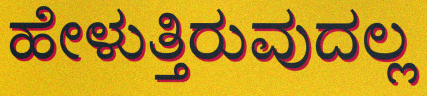
ಹೇಳುತ್ತಿರುವುದಲ್ಲ